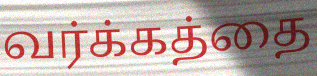
வர்க்கத்தை